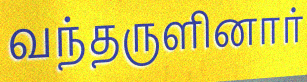
வந்தருளினார்